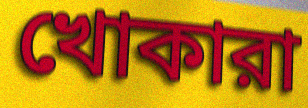
খোকারা